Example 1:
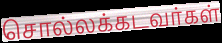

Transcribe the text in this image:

சொல்லக்கடவர்கள்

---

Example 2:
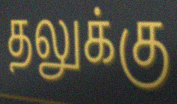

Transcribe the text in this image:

தலுக்கு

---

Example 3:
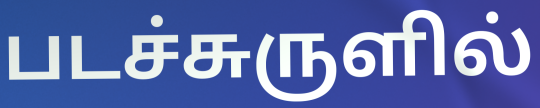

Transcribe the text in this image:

படச்சுருளில்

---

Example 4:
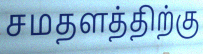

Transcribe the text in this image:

சமதளத்திற்கு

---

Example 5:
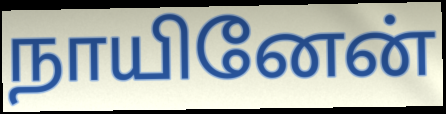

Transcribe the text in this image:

நாயினேன்